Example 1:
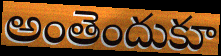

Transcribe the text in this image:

అంతెందుకూ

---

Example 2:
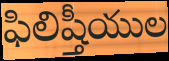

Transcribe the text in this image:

ఫిలిష్తీయుల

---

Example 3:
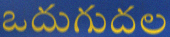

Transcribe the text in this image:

ఒదుగుదల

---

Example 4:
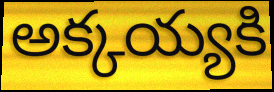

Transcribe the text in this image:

అక్కయ్యకి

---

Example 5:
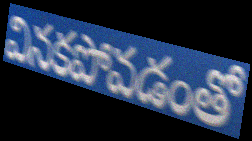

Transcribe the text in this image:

వినకపోవడంతో